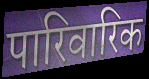
पारिवारिक